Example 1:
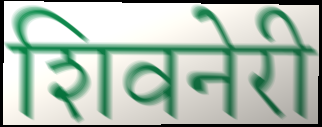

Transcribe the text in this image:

शिवनेरी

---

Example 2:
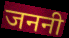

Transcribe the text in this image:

जननी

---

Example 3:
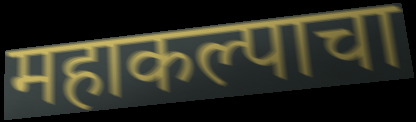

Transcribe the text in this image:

महाकल्पाचा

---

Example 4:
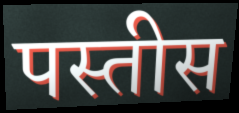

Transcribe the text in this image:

पस्तीस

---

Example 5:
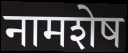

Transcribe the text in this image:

नामशेष